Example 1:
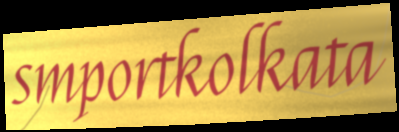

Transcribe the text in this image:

smportkolkata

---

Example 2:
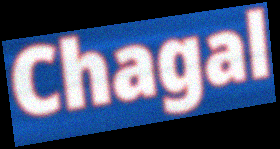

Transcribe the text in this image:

Chagal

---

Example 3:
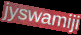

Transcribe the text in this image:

jyswamiji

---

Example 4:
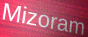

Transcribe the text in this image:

Mizoram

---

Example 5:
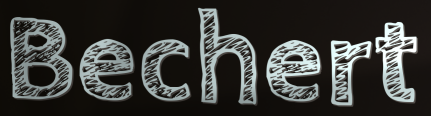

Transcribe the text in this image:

Bechert